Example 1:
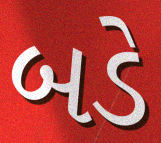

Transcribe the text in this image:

બડે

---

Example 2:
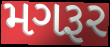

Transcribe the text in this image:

મગરૂર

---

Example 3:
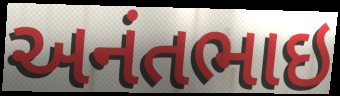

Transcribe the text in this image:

અનંતભાઇ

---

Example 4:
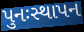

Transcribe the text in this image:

પુનઃસ્થાપન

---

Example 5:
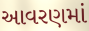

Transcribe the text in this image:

આવરણમાં